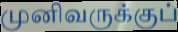
முனிவருக்குப்